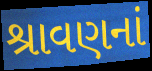
શ્રાવણનાં